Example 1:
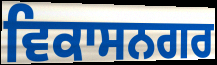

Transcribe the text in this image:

ਵਿਕਾਸਨਗਰ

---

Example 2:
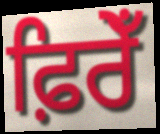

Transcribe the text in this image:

ਫ਼ਿਰੇਁ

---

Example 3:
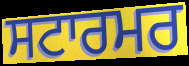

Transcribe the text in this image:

ਸਟਾਰਮਰ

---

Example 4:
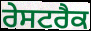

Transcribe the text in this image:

ਰੇਸਟਰੈਕ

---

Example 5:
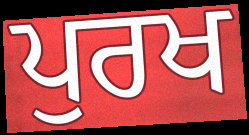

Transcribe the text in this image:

ਪੁਰਖ